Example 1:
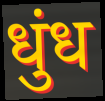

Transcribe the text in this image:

धुंध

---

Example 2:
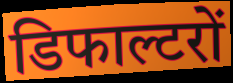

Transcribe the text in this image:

डिफाल्टरों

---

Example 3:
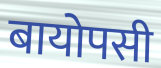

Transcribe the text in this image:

बायोपसी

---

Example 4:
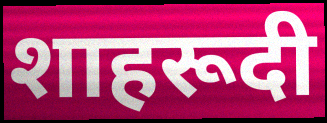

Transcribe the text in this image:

शाहरूदी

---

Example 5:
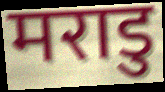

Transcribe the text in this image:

मराडु